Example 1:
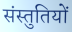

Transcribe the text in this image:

संस्तुतियों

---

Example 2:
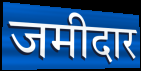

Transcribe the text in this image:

जमीदार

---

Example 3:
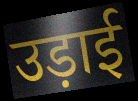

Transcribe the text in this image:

उड़ाई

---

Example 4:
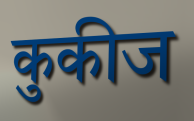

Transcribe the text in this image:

कुकीज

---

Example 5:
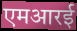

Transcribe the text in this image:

एमआरई